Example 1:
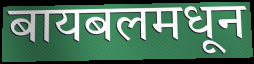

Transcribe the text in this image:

बायबलमधून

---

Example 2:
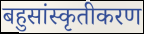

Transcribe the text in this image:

बहुसांस्कृतीकरण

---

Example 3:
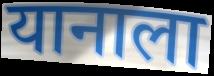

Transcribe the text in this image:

यानाला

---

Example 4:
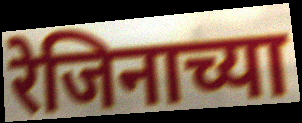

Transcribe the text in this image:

रेजिनाच्या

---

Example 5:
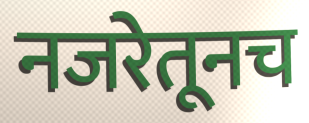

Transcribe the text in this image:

नजरेतूनच